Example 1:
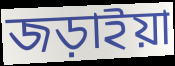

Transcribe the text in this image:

জড়াইয়া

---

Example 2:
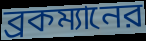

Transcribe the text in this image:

ব্রকম্যানের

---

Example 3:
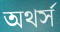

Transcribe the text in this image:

অথর্স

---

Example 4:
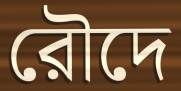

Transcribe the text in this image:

রৌদে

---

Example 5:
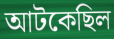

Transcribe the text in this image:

আটকেছিল